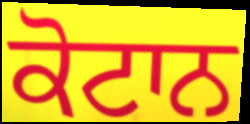
ਕੋਟਾਨ